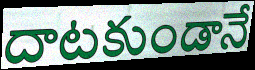
దాటకుండానే